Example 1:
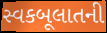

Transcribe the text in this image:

સ્વકબૂલાતની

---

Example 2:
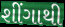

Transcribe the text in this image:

શીંગાથી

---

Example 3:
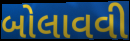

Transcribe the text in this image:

બોલાવવી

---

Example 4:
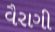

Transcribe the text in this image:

વૈરાગી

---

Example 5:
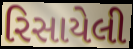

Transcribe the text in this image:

રિસાયેલી